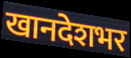
खानदेशभर